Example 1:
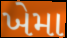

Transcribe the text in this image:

ખેમા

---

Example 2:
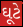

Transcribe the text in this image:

ઘૂટે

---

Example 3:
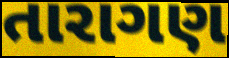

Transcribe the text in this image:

તારાગણ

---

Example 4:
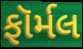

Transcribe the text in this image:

ફૉર્મલ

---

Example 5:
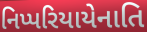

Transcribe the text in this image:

નિપ્પરિયાયેનાતિ